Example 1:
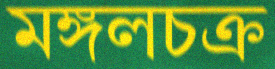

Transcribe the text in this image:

মঙ্গলচক্র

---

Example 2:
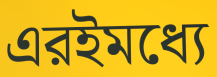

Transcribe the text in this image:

এরইমধ্যে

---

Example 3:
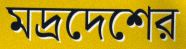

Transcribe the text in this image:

মদ্রদেশের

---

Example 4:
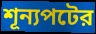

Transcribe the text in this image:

শূন্যপটের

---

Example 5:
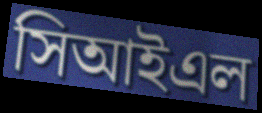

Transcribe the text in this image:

সিআইএল